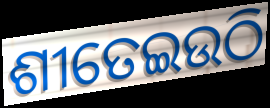
ଶୀତେଇଉଠି